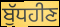
ਬੁੱਧਹੀਣ